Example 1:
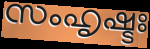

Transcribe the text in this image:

സംഹൃഷ്ടഃ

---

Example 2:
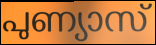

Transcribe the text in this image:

പുണ്യാസ്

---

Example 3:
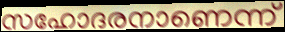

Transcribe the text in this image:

സഹോദരനാണെന്ന്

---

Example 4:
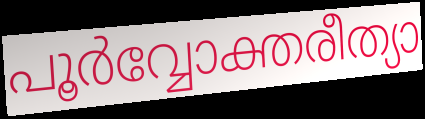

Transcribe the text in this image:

പൂർവ്വോക്തരീത്യാ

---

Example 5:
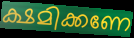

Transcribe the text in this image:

ക്ഷമിക്കണേ